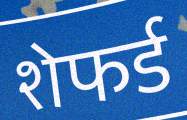
शेफर्ड